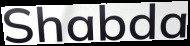
Shabda